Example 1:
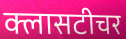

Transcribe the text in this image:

क्लासटीचर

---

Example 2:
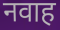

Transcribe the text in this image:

नवाह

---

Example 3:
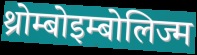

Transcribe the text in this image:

थ्रोम्बोइम्बोलिज्म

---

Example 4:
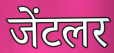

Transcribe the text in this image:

जेंटलर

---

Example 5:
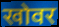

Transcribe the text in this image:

खोवर